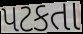
પટકતા